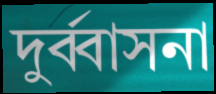
দুর্ব্বাসনা